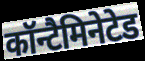
कॉन्टैमिनेटेड